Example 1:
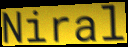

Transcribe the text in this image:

Niral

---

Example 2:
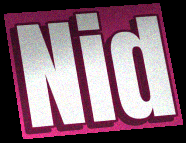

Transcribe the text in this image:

Nid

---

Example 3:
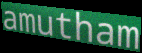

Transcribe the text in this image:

amutham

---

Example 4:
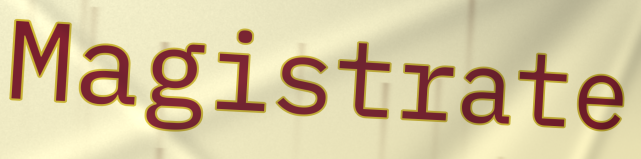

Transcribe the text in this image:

Magistrate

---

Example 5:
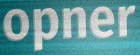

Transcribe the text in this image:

opner